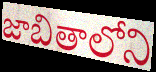
జాబితాలోని